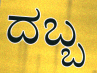
ದಬ್ಬ